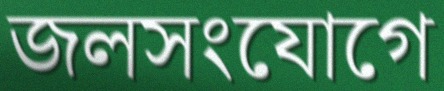
জলসংযোগে